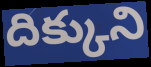
దిక్కుని